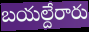
బయల్దేరారు